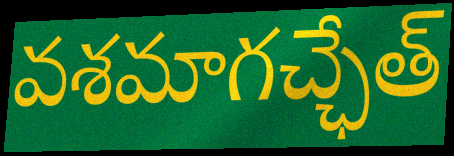
వశమాగచ్ఛేత్